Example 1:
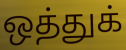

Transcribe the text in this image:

ஒத்துக்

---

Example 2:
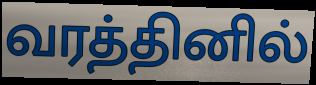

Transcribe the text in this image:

வரத்தினில்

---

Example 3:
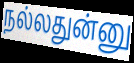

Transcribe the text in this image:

நல்லதுன்னு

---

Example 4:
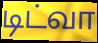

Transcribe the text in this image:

டிட்வா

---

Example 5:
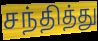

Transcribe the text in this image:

சந்தித்து